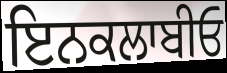
ਇਨਕਲਾਬੀਓ